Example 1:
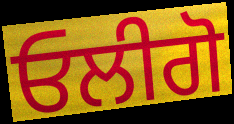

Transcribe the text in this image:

ਓਲੀਗੋ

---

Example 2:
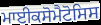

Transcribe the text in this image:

ਮਾਈਕਸੋਮੈਟੋਸਿਸ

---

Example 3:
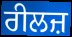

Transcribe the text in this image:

ਰੀਲਜ਼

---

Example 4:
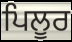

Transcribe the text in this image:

ਪਿਲੂਰ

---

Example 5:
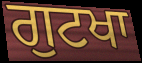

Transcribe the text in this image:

ਗੁਟਖਾ